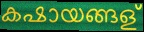
കഷായങ്ങള്